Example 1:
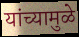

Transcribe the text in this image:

यांच्यामुळे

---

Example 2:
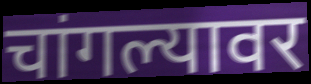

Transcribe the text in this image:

चांगल्यावर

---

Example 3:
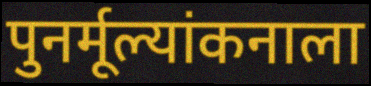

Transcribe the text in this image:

पुनर्मूल्यांकनाला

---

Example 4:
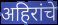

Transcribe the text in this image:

अहिरांचे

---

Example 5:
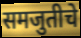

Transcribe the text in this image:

समजुतीचे